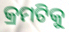
କ୍ରମଟିକୁ